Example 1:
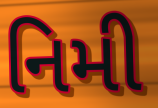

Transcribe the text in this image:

નિમી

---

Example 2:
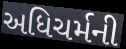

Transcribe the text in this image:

અધિચર્મની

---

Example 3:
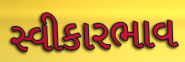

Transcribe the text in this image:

સ્વીકારભાવ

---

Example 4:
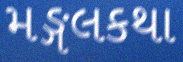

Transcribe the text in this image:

મઙ્ગલકથા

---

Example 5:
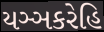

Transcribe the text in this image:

યઞ્ઞકરેહિ